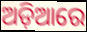
ଅଡ଼ିଆରେ